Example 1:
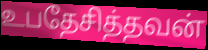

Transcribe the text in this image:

உபதேசித்தவன்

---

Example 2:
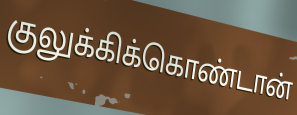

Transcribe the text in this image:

குலுக்கிக்கொண்டான்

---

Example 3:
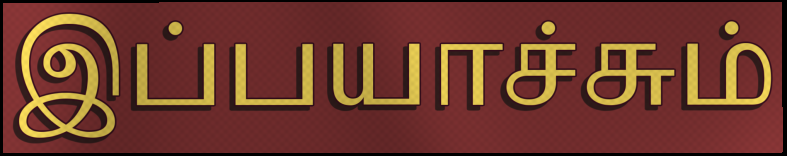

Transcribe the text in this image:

இப்பயாச்சும்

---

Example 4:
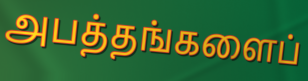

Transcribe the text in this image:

அபத்தங்களைப்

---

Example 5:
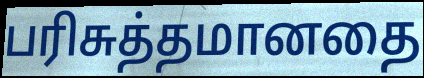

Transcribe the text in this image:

பரிசுத்தமானதை